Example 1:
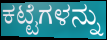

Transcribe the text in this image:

ಕಟ್ಟೆಗಳನ್ನು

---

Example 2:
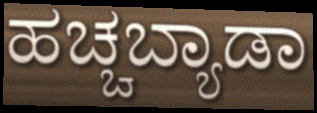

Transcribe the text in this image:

ಹಚ್ಚಬ್ಯಾಡಾ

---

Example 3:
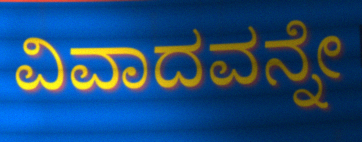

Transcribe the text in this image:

ವಿವಾದವನ್ನೇ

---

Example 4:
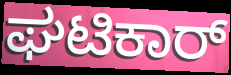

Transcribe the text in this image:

ಘಟಿಕಾರ್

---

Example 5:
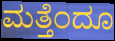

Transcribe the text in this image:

ಮತ್ತೆಂದೂ